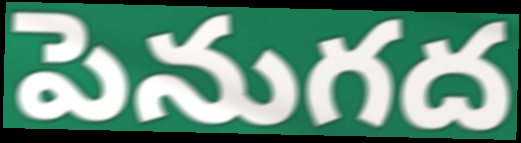
పెనుగద